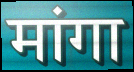
मांगा